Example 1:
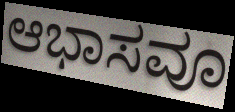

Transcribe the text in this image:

ಆಭಾಸವೂ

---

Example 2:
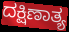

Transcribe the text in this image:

ದಕ್ಷಿಣಾತ್ಯ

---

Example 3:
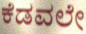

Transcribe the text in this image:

ಕೆಡವಲೇ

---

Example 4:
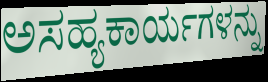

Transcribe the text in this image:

ಅಸಹ್ಯಕಾರ್ಯಗಳನ್ನು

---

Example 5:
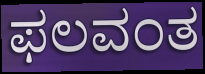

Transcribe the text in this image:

ಫಲವಂತ